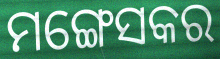
ମଙ୍ଗେସକର